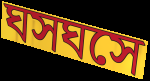
ঘসঘসে